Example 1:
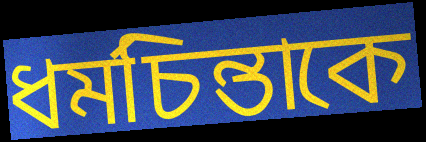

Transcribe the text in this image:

ধর্মচিন্তাকে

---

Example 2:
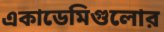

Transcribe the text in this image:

একাডেমিগুলোর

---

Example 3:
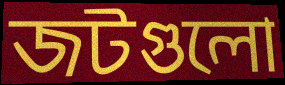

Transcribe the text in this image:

জটগুলো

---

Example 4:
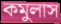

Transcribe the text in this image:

কমুলাস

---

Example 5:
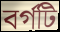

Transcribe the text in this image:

বর্গটি